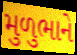
મુળુભાને